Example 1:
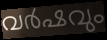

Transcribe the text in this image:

വർഷവും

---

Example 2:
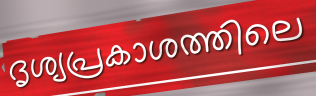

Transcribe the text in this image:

ദൃശ്യപ്രകാശത്തിലെ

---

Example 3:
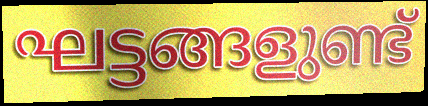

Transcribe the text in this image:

ഘട്ടങ്ങളുണ്ട്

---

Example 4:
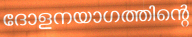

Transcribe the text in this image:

ദോളനയാഗത്തിന്റെ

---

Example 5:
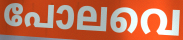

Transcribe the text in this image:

പോലവെ